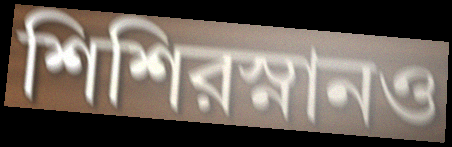
শিশিরস্নানও